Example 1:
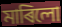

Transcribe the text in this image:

মাৰিলো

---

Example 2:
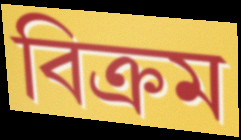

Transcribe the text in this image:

বিক্ৰম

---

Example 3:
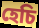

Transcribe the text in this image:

হেচি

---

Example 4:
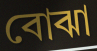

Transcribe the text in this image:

বোঝা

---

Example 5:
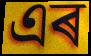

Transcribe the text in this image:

এৰ